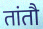
तांतौ